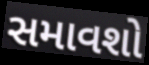
સમાવશો